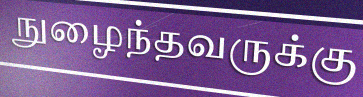
நுழைந்தவருக்கு